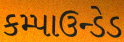
કમ્પાઉન્ડેડ